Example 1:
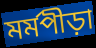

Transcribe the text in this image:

মর্মপীড়া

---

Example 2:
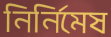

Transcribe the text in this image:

নির্নিমেষ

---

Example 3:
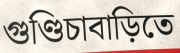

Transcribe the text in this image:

গুণ্ডিচাবাড়িতে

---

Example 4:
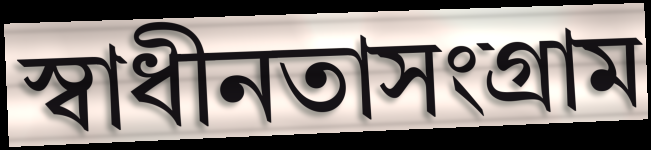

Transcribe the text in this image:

স্বাধীনতাসংগ্রাম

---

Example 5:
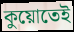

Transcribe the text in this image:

কুয়োতেই